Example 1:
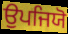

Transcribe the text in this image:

ਉਪਜਿਯੋ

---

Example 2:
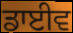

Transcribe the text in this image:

ਡਾਈਵ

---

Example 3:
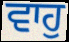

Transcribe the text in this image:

ਵਾਹੁ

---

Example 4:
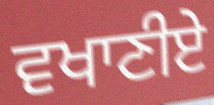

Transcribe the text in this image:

ਵਖਾਣੀਏ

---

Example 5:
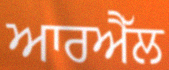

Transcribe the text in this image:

ਆਰਐੱਲ